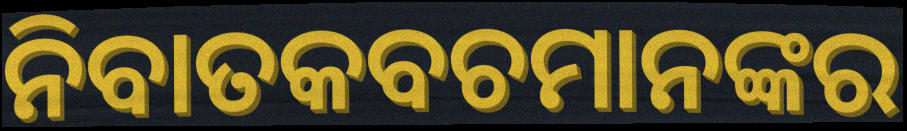
ନିବାତକବଚମାନଙ୍କର